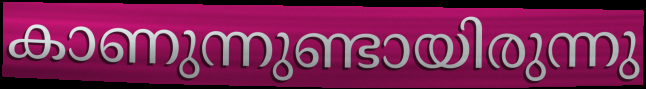
കാണുന്നുണ്ടായിരുന്നു